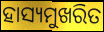
ହାସ୍ୟମୁଖରିତ